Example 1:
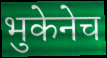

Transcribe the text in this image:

भुकेनेच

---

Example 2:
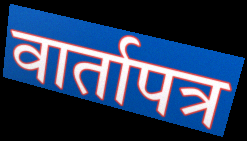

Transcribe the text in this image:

वार्तापत्र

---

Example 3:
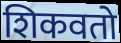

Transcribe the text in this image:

शिकवतो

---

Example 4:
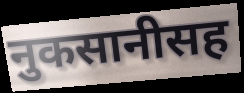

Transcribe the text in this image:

नुकसानीसह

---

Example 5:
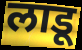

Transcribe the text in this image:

लाडू